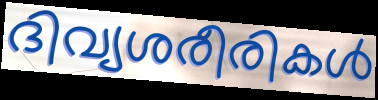
ദിവ്യശരീരികൾ